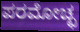
ಪರಮೋಚ್ಛ